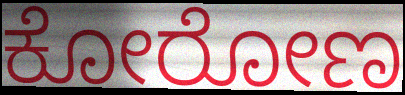
ಕೋರೋಣ